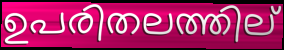
ഉപരിതലത്തില്